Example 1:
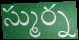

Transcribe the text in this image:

స్ముర్న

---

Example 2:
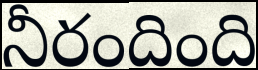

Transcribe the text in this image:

నీరందింది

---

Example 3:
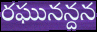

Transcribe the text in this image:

రఘునన్దన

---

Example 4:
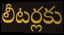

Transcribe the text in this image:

లీటర్లకు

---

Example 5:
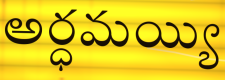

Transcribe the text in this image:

అర్ధమయ్యి